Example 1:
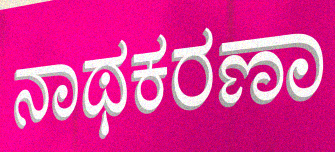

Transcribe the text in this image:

ನಾಥಕರಣಾ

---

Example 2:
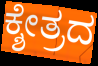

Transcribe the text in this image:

ಕ್ಶೇತ್ರದ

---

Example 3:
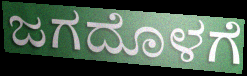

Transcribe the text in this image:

ಜಗದೊಳಗೆ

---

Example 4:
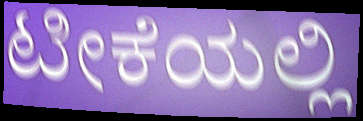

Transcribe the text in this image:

ಟೀಕೆಯಲ್ಲಿ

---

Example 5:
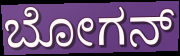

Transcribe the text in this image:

ಬೋಗನ್